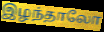
இழந்தாலோ